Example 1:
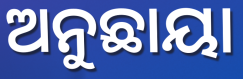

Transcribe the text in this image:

ଅନୁଛାୟା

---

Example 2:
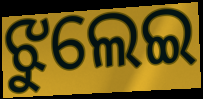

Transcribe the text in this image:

ଝୁଲେଇ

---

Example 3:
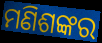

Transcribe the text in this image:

ମଣିଶଙ୍କର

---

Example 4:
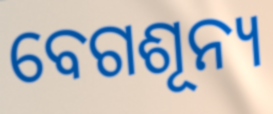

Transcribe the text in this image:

ବେଗଶୂନ୍ୟ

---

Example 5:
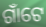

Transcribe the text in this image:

ଗାଁଟେ